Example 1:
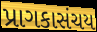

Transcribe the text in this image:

પ્રાગકાસંચય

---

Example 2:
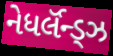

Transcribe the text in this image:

નેધર્લૅન્ડ્ઝ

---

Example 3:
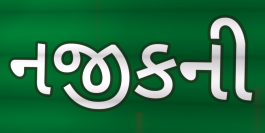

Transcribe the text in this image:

નજીકની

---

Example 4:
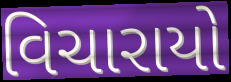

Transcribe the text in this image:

વિચારાયો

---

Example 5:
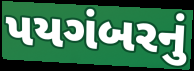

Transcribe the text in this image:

પયગંબરનું